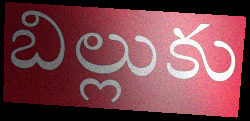
బిల్లుకు